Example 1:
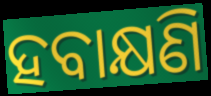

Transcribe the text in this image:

ହବାକ୍ଷଣି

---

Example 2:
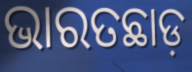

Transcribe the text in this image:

ଭାରତଛାଡ଼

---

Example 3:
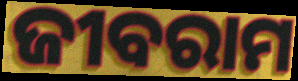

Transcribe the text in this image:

ଜୀବରାମ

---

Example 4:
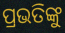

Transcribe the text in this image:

ପ୍ରଭତିଙ୍କୁ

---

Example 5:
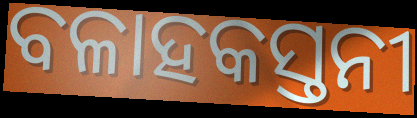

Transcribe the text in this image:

ବଳାହକସ୍ତନୀ